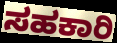
ಸಹಕಾರಿ